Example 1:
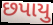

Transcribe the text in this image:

છપાયુ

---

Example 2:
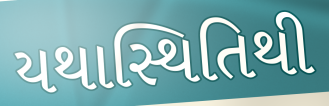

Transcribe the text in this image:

યથાસ્થિતિથી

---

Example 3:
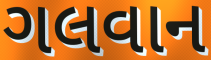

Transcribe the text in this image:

ગલવાન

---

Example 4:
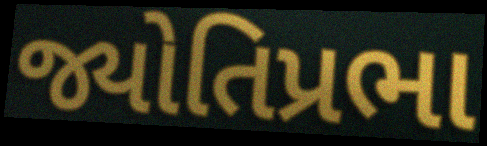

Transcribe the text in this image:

જ્યોતિપ્રભા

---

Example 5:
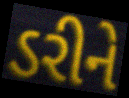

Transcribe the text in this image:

ડરીને